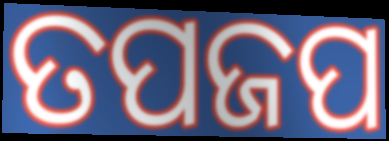
ତପଜପ